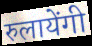
रुलायेंगी